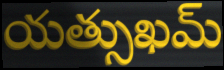
యత్సుఖమ్